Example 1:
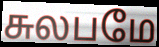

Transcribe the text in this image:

சுலபமே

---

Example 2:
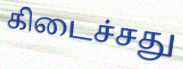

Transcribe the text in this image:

கிடைச்சது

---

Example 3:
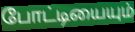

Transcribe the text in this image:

போட்டியையும்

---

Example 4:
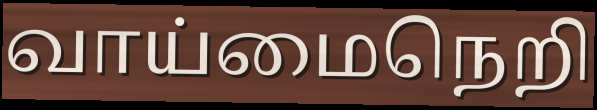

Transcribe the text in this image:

வாய்மைநெறி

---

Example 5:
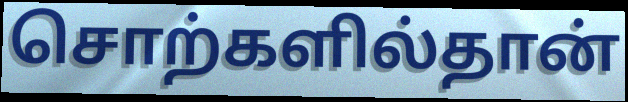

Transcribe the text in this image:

சொற்களில்தான்